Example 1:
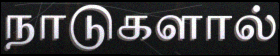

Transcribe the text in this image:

நாடுகளால்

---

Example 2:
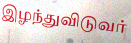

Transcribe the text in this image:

இழந்துவிடுவர்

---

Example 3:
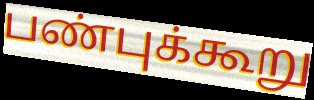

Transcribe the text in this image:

பண்புக்கூறு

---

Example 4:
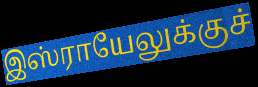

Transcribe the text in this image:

இஸ்ராயேலுக்குச்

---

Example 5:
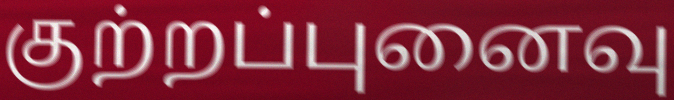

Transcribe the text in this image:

குற்றப்புனைவு